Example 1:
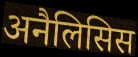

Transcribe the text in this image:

अनैलिसिस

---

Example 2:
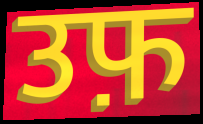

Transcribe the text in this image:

उफ़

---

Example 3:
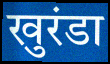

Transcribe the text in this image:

खुरंडा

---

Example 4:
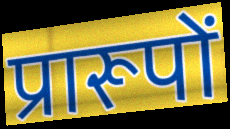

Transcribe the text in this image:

प्रारूपों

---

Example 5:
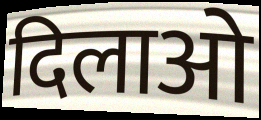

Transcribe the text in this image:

दिलाओ